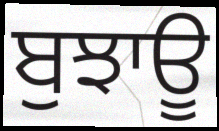
ਬੁਝਾਊ